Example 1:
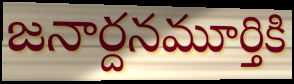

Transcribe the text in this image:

జనార్దనమూర్తికి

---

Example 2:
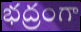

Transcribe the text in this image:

భద్రంగా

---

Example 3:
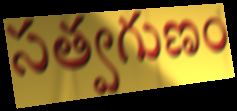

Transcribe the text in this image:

సత్వగుణం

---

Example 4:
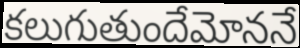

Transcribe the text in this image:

కలుగుతుందేమోననే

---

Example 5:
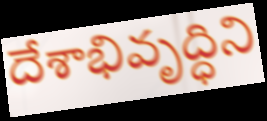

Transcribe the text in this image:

దేశాభివృద్ధిని